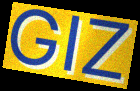
GIZ